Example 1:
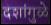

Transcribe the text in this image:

दशांगुळे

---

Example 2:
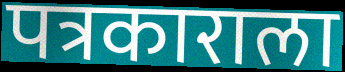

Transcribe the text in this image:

पत्रकाराला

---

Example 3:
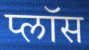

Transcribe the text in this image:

प्लॉस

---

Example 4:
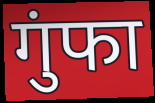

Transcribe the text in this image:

गुंफा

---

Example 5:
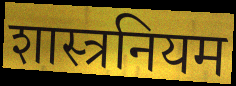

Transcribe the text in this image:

शास्त्रनियम